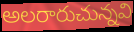
అలరారుచున్నవి